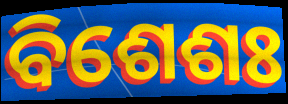
ବିଶେଶଃ